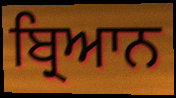
ਬ੍ਰਿਆਨ